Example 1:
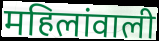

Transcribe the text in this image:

महिलांवाली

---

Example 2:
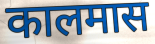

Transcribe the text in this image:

कालमास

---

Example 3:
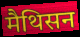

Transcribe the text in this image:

मैथिसन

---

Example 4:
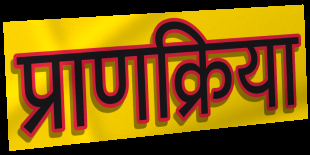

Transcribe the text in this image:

प्राणक्रिया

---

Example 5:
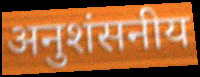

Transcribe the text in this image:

अनुशंसनीय